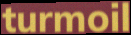
turmoil